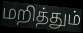
மறித்தும்